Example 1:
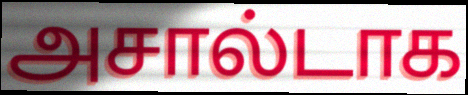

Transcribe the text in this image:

அசால்டாக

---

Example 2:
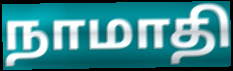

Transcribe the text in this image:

நாமாதி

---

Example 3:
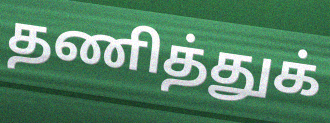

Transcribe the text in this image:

தணித்துக்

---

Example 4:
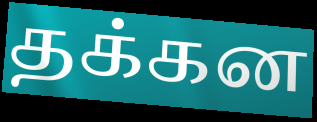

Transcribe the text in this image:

தக்கன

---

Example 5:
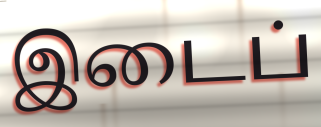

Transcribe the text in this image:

இடைப்